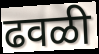
ढवळी